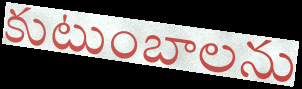
కుటుంబాలను